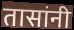
तासांनी